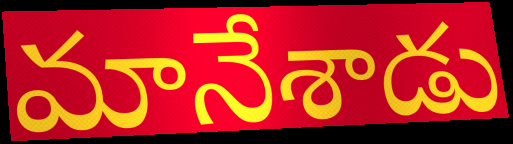
మానేశాడు